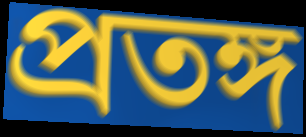
প্রতঙ্গ